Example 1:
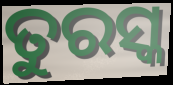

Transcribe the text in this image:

ତୁରସ୍କ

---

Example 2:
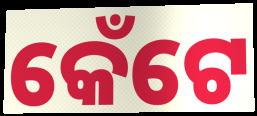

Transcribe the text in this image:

କେଁଟେ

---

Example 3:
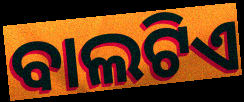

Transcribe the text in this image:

ବାଲଟିଏ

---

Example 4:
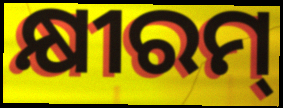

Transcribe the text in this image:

କ୍ଷୀରମ୍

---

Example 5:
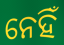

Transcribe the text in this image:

ନେହିଁ